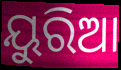
ୟୁରିଆ